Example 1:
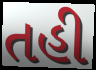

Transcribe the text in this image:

તહી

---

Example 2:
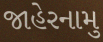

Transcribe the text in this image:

જાહેરનામુ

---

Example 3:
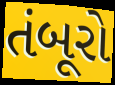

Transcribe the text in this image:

તંબૂરો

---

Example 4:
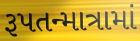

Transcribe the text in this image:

રૂપતન્માત્રામાં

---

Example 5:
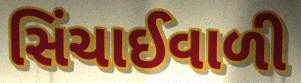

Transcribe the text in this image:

સિંચાઈવાળી